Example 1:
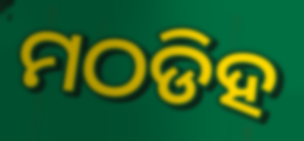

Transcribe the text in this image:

ମଠଡିହ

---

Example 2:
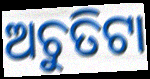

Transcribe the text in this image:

ଅଚୁତିଟା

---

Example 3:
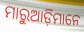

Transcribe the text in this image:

ମାରୁଆଡ଼ିମାନେ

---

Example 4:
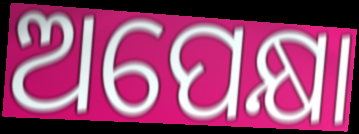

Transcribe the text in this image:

ଅପେକ୍ଷା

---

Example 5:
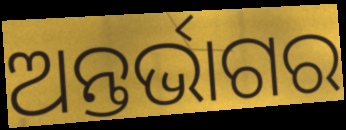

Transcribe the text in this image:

ଅନ୍ତର୍ଭାଗର